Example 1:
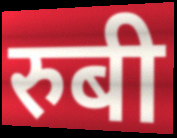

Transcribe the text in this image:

रुबी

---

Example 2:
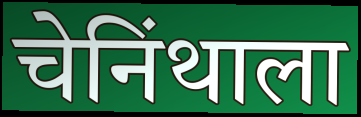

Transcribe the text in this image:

चेनिंथाला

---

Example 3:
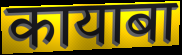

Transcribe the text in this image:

कायाबा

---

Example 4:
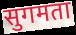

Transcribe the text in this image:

सुगमता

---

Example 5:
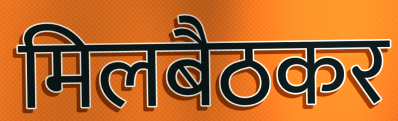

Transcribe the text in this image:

मिलबैठकर